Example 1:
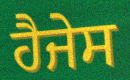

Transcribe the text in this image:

ਹੈਜੇਸ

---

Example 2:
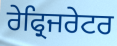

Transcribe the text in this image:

ਰੇਫ੍ਰਿਜਰੇਟਰ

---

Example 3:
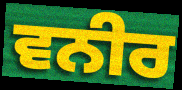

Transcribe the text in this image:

ਵਨੀਰ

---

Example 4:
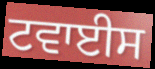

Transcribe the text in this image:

ਟਵਾਈਸ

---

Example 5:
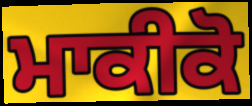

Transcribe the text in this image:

ਮਾਕੀਕੋ